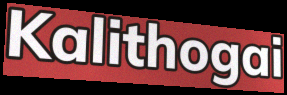
Kalithogai